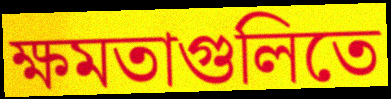
ক্ষমতাগুলিতে